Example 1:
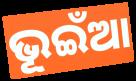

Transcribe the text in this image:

ଭୂଇଁଆ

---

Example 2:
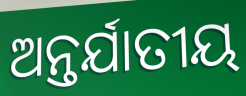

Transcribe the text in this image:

ଅନ୍ତର୍ଯାତୀୟ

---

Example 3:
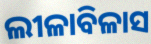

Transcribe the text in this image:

ଲୀଳାବିଳାସ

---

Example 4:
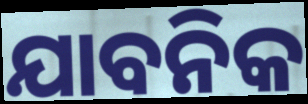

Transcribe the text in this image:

ଯାବନିକ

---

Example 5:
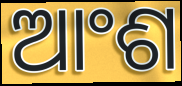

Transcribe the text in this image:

ଆଂଶ